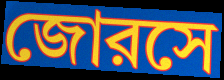
জোরসে